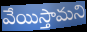
వేయిస్తామని